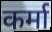
कर्मा